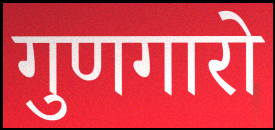
गुणगारो